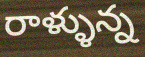
రాళ్ళున్న